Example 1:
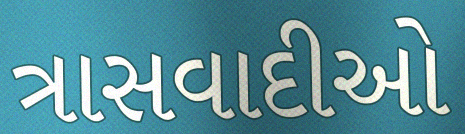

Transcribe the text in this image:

ત્રાસવાદીઓ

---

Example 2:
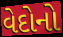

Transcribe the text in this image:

વેદોનો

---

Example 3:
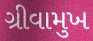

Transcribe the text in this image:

ગ્રીવામુખ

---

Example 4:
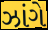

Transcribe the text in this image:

ઝાંગે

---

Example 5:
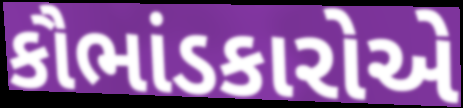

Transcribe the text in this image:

કૌભાંડકારોએ